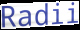
Radii